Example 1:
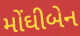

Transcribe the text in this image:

મોંઘીબેન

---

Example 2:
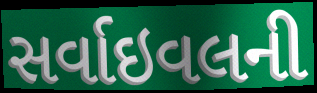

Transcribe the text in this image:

સર્વાઇવલની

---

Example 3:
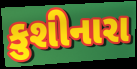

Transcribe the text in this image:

કુશીનારા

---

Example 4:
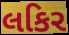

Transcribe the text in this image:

લકિર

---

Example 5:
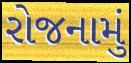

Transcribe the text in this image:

રોજનામું